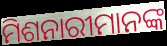
ମିଶନାରୀମାନଙ୍କ